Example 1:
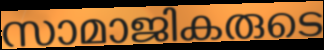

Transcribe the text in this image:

സാമാജികരുടെ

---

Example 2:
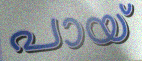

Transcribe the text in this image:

പായ്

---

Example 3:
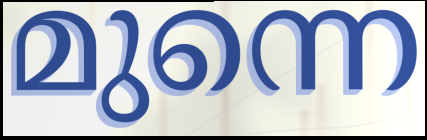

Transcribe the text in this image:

മുന്നെ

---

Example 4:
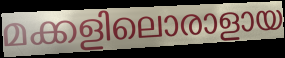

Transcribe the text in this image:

മക്കളിലൊരാളായ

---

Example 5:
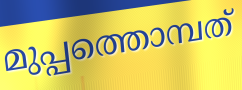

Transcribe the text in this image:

മുപ്പത്തൊമ്പത്